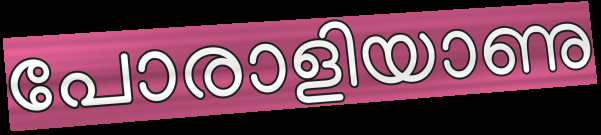
പോരാളിയാണു